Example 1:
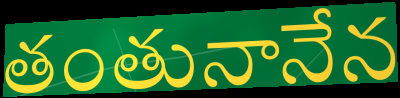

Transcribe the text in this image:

తంతునానేన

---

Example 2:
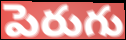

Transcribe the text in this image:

పెరుగు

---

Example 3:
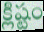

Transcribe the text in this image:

క్లిష్టం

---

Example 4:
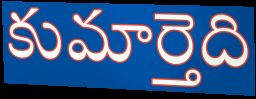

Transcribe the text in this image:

కుమార్తెది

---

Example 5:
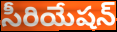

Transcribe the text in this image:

సీరియేషన్